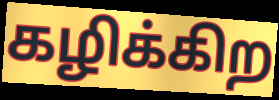
கழிக்கிற